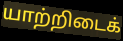
யாற்றிடைக்